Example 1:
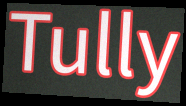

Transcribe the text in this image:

Tully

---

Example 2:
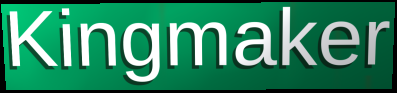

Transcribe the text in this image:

Kingmaker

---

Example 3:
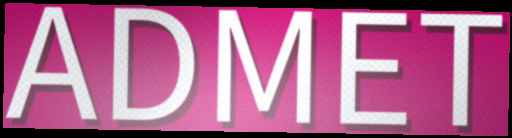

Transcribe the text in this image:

ADMET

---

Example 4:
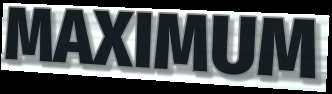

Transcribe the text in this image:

MAXIMUM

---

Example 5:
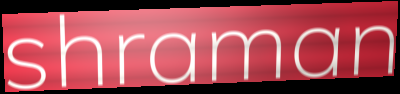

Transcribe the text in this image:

shraman